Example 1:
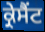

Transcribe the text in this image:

ਕ੍ਰੇਸੈਂਟ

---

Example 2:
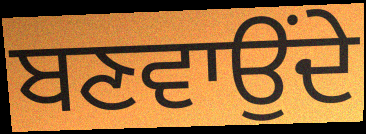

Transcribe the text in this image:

ਬਣਵਾਉਂਦੇ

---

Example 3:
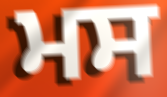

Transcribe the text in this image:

ਮਸ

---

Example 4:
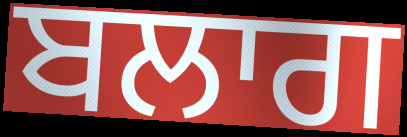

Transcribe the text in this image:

ਬਲਾਗ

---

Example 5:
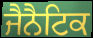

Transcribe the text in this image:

ਜੈਨੈਟਿਕ